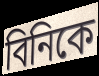
বিনিকে